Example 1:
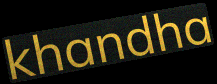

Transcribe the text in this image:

khandha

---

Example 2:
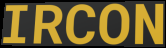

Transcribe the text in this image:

IRCON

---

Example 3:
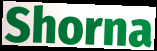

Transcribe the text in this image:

Shorna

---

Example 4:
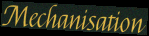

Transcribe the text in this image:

Mechanisation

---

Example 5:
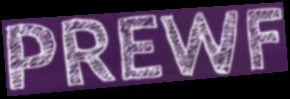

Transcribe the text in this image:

PREWF